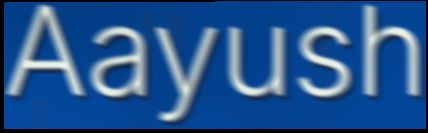
Aayush